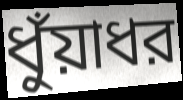
ধুঁয়াধর